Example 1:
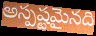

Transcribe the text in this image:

అస్పష్టమైనది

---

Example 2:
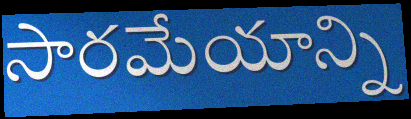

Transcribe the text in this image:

సారమేయాన్ని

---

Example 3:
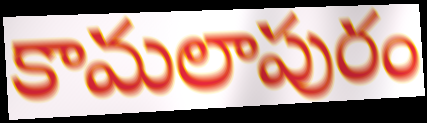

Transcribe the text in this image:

కామలాపురం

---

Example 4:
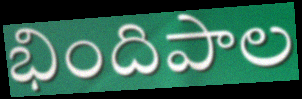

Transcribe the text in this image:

భిందిపాల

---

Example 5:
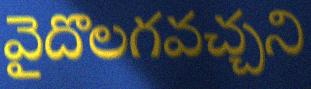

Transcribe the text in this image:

వైదొలగవచ్చని